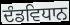
ਦੰਡਵਿਧਾਨ